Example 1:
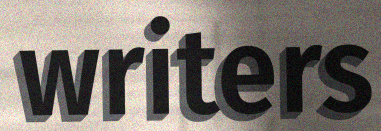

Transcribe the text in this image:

writers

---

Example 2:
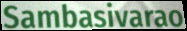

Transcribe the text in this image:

Sambasivarao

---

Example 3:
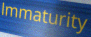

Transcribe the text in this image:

Immaturity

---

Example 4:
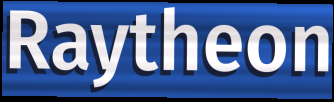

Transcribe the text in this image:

Raytheon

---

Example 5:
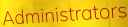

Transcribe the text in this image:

Administrators